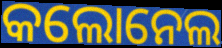
କଲୋନେଲ